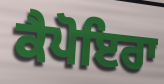
ਕੈਪੋਇਰਾ